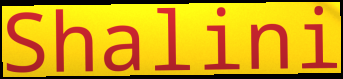
Shalini